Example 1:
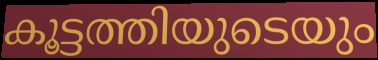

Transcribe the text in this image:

കൂട്ടത്തിയുടെയും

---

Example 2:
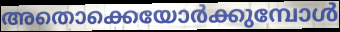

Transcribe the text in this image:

അതൊക്കെയോർക്കുമ്പോൾ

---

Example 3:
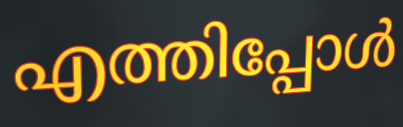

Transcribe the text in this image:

എത്തിപ്പോൾ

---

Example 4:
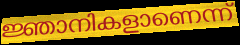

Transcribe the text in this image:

ജ്ഞാനികളാണെന്ന്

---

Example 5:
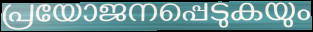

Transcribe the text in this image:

പ്രയോജനപ്പെടുകയും